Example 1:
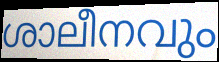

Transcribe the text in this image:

ശാലീനവും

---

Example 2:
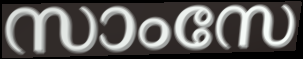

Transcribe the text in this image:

സാംസേ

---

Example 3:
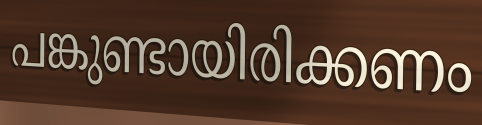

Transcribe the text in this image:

പങ്കുണ്ടായിരിക്കണം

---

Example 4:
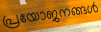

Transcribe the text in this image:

പ്രയോജനങ്ങൾ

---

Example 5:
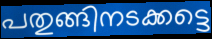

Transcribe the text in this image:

പതുങ്ങിനടക്കട്ടെ